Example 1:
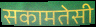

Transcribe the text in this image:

सकामतेसी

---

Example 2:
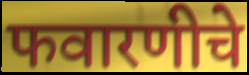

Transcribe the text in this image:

फवारणीचे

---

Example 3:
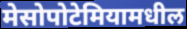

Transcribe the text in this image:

मेसोपोटेमियामधील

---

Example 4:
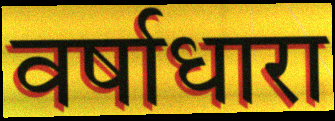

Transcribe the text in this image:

वर्षाधारा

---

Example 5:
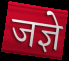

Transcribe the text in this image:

जज्ञे